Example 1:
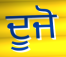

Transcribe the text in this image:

ਦੂਜੋ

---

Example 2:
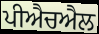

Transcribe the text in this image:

ਪੀਐਚਐਲ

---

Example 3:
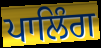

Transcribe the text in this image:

ਪਾਲਿੰਗ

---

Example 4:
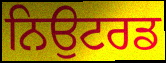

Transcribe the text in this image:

ਨਿਉਟਰਡ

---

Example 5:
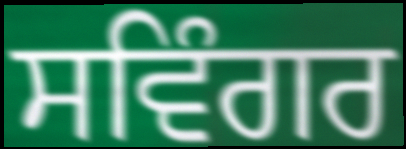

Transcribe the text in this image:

ਸਵਿੰਗਰ